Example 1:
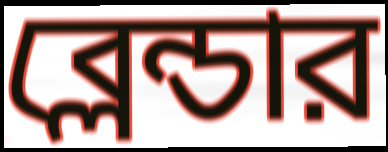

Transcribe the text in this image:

ব্লেন্ডার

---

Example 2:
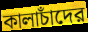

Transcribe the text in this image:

কালাচাঁদের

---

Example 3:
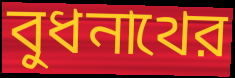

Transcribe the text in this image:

বুধনাথের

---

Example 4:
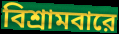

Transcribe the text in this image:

বিশ্রামবারে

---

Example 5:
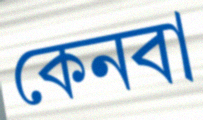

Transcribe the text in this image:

কেনবা